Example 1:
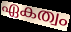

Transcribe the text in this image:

ഏകത്വം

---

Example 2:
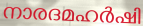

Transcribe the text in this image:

നാരദമഹർഷി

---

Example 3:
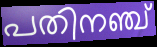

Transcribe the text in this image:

പതിനഞ്ച്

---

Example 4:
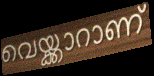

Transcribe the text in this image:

വെയ്ക്കാറാണ്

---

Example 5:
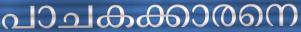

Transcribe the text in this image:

പാചകക്കാരനെ